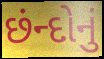
છંન્દોનું